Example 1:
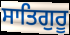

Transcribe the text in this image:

ਸਾਤਿਗੁਰੂ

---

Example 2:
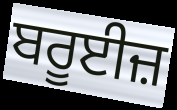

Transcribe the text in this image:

ਬਰੂਈਜ਼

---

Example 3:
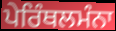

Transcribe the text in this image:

ਪੇਰਿੰਥਲਮੰਨਾ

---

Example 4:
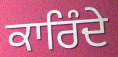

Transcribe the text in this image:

ਕਾਰਿੰਦੇ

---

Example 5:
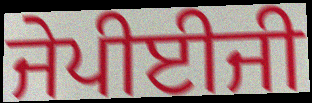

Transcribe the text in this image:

ਜੇਪੀਈਜੀ